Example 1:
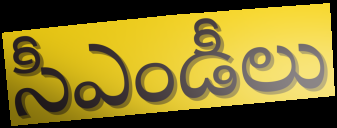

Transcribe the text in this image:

సీఎండీలు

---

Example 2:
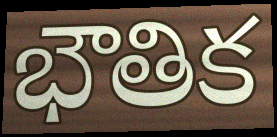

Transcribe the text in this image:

భౌతిక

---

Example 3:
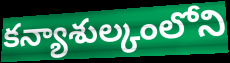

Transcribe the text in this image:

కన్యాశుల్కంలోని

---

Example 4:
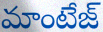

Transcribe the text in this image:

మాంటేజ్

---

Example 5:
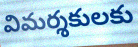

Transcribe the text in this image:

విమర్శకులకు